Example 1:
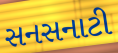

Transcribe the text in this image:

સનસનાટી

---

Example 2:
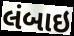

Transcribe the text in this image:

લંબાઇ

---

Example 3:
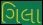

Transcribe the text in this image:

ગિલા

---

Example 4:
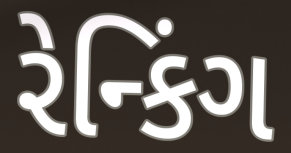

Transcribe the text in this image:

રેન્કિંગ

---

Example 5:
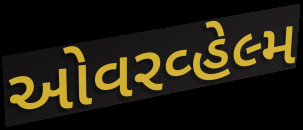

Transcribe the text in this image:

ઓવરવ્હેલ્મ